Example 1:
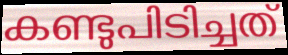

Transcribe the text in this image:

കണ്ടുപിടിച്ചത്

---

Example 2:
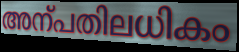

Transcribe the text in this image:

അന്പതിലധികം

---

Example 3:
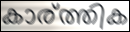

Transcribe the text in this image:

കാര്ത്തിക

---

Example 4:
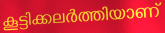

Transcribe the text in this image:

കൂട്ടിക്കലർത്തിയാണ്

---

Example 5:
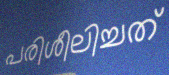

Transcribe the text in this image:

പരിശീലിച്ചത്